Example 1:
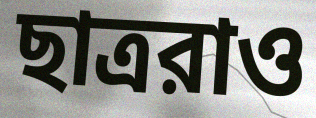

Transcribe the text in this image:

ছাত্ররাও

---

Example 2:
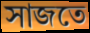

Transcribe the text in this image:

সাজতে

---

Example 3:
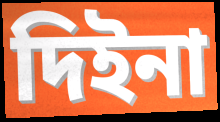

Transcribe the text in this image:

দিইনা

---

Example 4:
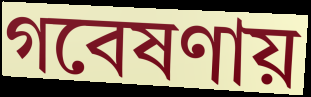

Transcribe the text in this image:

গবেষণায়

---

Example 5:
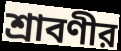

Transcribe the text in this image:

শ্রাবণীর